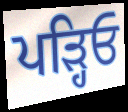
ਪੜ੍ਹਿਓ